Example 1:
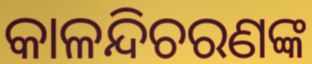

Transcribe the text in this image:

କାଳନ୍ଦିଚରଣଙ୍କ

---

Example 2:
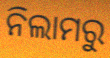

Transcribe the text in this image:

ନିଲାମରୁ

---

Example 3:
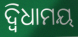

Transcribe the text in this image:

ଦ୍ୱିଧାମୟ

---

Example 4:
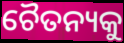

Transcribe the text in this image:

ଚୈତନ୍ୟକୁ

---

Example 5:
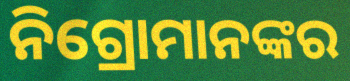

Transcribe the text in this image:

ନିଗ୍ରୋମାନଙ୍କର